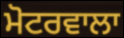
ਮੋਟਰਵਾਲਾ